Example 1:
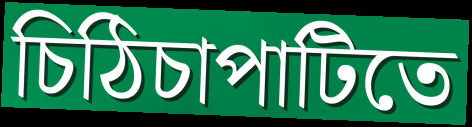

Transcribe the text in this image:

চিঠিচাপাটিতে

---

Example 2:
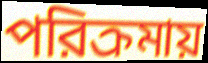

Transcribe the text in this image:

পরিক্রমায়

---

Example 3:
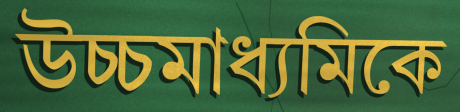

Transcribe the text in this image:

উচ্চমাধ্যমিকে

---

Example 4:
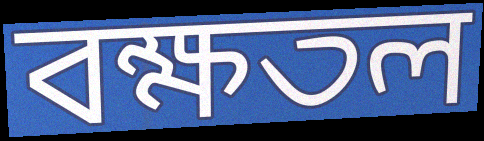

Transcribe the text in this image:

বক্ষতল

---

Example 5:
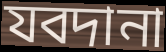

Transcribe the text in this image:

যবদানা